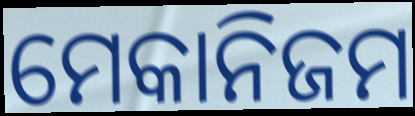
ମେକାନିଜମ